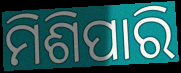
ମିଶିପାରି